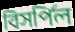
বিসর্পিল